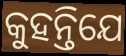
କୁହନ୍ତିଯେ